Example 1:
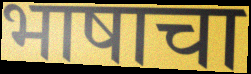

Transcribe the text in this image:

भाषाचा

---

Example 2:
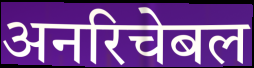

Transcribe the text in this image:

अनरिचेबल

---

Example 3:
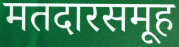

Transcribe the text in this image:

मतदारसमूह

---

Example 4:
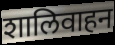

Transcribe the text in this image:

शालिवाहन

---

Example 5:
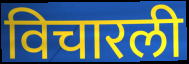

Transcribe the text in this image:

विचारली